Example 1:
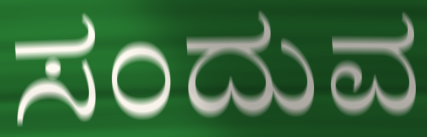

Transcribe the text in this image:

ಸಂದುವ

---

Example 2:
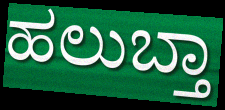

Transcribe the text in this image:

ಹಲುಬ್ತಾ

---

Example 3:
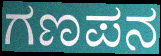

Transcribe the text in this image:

ಗಣಪನ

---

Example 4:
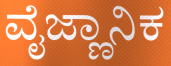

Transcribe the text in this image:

ವೈಜ್ಣಾನಿಕ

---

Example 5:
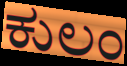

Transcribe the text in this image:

ಕುಲಂ